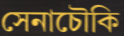
সেনাচৌকি